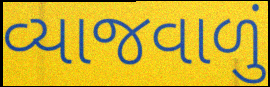
વ્યાજવાળું